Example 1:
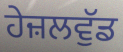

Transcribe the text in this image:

ਹੇਜ਼ਲਵੁੱਡ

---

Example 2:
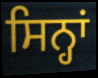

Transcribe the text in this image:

ਸਿਨ੍ਹਾਂ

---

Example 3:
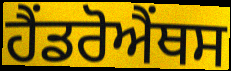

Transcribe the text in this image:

ਹੈਂਡਰੋਐਂਥਸ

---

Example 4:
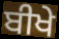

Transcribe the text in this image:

ਬੀਖੇ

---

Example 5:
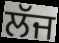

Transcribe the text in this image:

ਲੱਜ